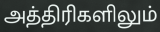
அத்திரிகளிலும்